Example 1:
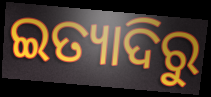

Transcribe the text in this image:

ଇତ୍ୟାଦିରୁ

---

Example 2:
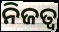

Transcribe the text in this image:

ନିଜତ୍ବ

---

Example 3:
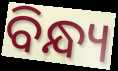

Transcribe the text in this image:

ବିନ୍ଧ୍ୟ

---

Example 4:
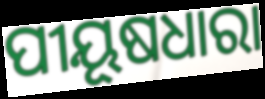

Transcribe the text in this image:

ପୀୟୂଷଧାରା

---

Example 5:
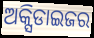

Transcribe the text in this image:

ଅକ୍ସିଡାଇଜର